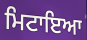
ਮਿਟਾਇਆ